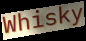
Whisky